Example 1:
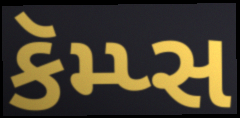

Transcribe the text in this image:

કૅમ્પ્સ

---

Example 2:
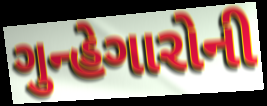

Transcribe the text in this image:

ગુન્હેગારોની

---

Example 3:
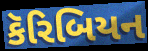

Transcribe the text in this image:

કૅરિબિયન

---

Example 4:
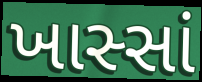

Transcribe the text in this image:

ખાસ્સાં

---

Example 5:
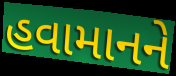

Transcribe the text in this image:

હવામાનને